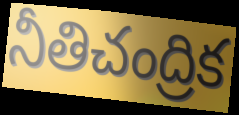
నీతిచంద్రిక